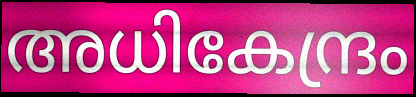
അധികേന്ദ്രം